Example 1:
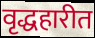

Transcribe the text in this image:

वृद्धहारीत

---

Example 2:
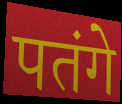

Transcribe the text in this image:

पतंगे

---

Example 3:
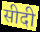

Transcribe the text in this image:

सीदी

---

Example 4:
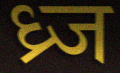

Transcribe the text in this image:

ध्र्ज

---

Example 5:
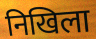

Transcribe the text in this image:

निखिला